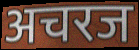
अचरज